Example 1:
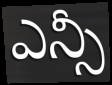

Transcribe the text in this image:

ఎన్సీ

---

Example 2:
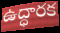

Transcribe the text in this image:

ఉద్ధారక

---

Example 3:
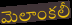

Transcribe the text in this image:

మెలాంకలీ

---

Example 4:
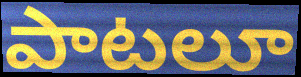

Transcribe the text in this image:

పాటలూ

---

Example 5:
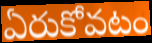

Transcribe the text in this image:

ఏరుకోవటం